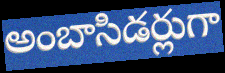
అంబాసిడర్లుగా